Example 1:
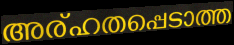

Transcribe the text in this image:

അര്ഹതപ്പെടാത്ത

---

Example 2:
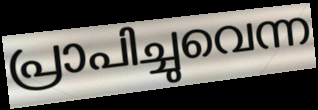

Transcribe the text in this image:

പ്രാപിച്ചുവെന്ന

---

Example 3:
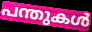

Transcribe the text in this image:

പന്തുകൾ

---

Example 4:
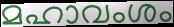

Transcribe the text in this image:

മഹാവംശം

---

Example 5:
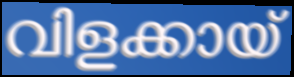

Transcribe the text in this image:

വിളക്കായ്